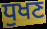
ਧੁਖਣ